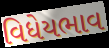
વિધેયભાવ